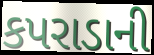
કપરાડાની